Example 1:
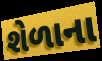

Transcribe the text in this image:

શેળાના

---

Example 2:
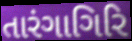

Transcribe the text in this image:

તારંગાગિરિ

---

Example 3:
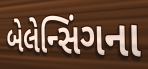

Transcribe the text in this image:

બેલેન્સિંગના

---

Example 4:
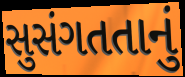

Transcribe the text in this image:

સુસંગતતાનું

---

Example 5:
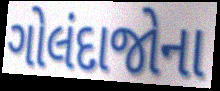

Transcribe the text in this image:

ગોલંદાજોના